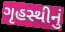
ગૃહસ્થીનું